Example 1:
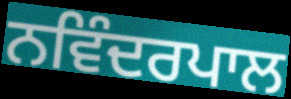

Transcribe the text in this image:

ਨਵਿੰਦਰਪਾਲ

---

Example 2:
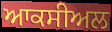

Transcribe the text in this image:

ਆਕਸੀਅਲ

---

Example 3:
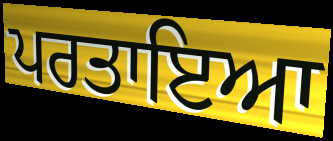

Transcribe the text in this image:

ਪਰਤਾਇਆ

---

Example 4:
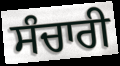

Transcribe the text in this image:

ਸੰਚਾਰੀ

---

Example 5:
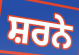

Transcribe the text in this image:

ਸ਼ਰਨੇ